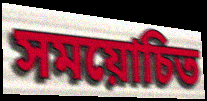
সময়োচিত